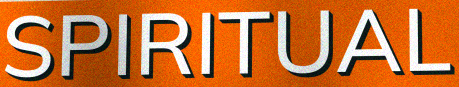
SPIRITUAL